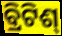
ବ୍ରିଟିଶ୍